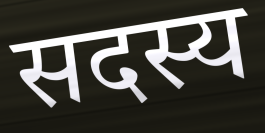
सदस्‍य